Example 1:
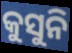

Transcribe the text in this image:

କୁସୁନି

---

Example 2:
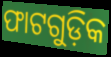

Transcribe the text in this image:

ଫାଟଗୁଡ଼ିକ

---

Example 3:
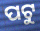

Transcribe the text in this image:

ପଟୁ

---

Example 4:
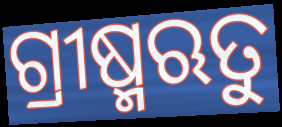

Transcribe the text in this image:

ଗ୍ରୀଷ୍ମଋତୁ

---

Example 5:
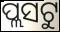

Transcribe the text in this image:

ପ୍ଲସଟୁ